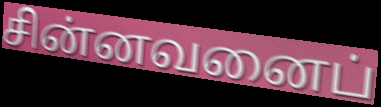
சின்னவனைப்